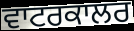
ਵਾਟਰਕਾਲਰ